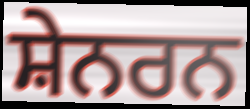
ਸ਼ੇਨਰਨ